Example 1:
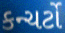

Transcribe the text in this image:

કન્ચર્ટો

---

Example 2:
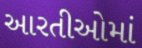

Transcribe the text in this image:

આરતીઓમાં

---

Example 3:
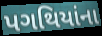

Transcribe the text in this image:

પગથિયાંના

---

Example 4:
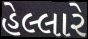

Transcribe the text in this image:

હેલ્લારે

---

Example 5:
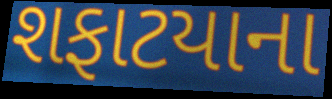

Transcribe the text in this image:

શફાટયાના